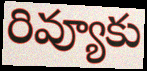
రివ్యూకు